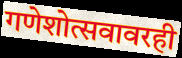
गणेशोत्सवावरही